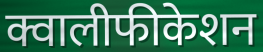
क्वालीफीकेशन